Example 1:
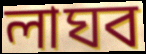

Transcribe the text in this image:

লাঘব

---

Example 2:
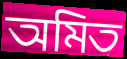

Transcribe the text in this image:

অমিত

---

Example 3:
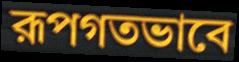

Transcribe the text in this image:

রূপগতভাবে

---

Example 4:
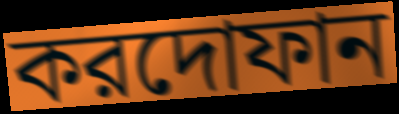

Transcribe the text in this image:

করদোফান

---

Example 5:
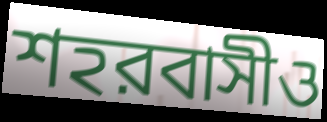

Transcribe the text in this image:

শহরবাসীও